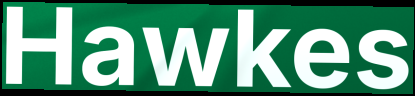
Hawkes